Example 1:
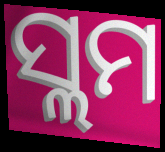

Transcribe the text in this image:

ସ୍ଲମ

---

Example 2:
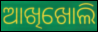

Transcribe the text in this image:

ଆଖିଖୋଲି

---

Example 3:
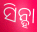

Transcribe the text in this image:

ସିନ୍ହା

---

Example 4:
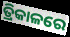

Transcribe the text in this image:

ତ୍ରିକାଳରେ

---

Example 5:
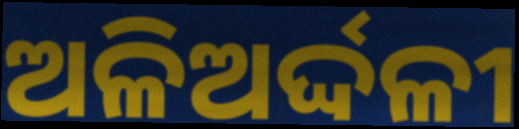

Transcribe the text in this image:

ଅଳିଅର୍ଦ୍ଦଳୀ